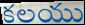
కలయు